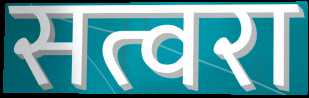
सत्वरा